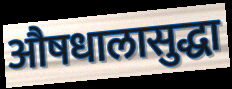
औषधालासुद्धा